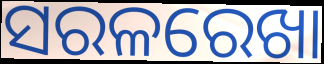
ସରଳରେଖା